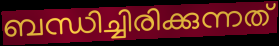
ബന്ധിച്ചിരിക്കുന്നത്